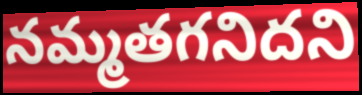
నమ్మతగనిదని